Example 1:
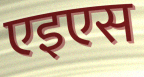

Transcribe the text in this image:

एइएस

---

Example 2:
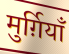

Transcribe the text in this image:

मुर्ग़ियाँ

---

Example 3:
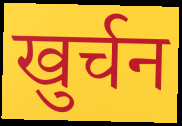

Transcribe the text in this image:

खुर्चन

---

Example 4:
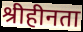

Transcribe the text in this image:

श्रीहीनता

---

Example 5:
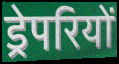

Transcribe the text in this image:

ड्रेपरियों